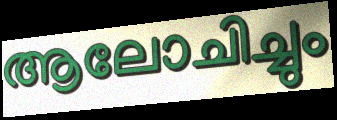
ആലോചിച്ചും